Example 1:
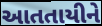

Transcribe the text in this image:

આતતાયીને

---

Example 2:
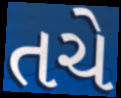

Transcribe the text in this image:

તચે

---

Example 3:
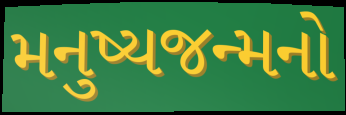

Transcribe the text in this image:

મનુષ્યજન્મનો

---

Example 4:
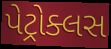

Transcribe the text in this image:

પેટ્રોક્લસ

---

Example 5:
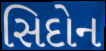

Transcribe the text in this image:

સિદોન